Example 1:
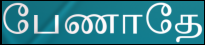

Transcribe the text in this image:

பேணாதே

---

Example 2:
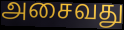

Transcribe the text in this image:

அசைவது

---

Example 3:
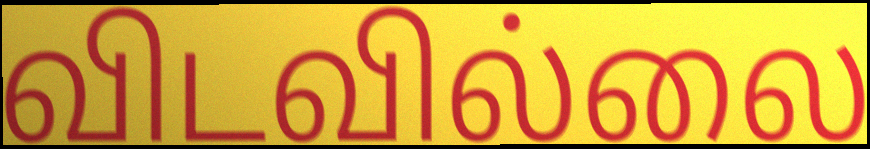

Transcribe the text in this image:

விடவில்லை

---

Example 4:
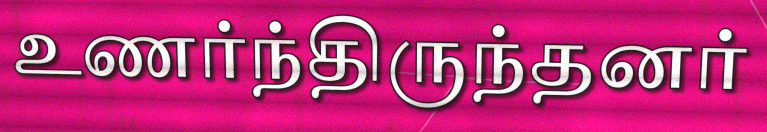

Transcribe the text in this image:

உணர்ந்திருந்தனர்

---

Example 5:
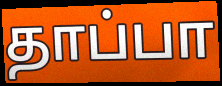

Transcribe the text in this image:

தாப்பா